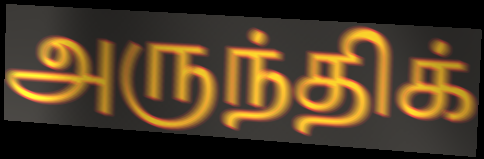
அருந்திக்